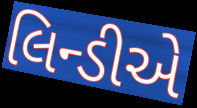
લિન્ડીએ